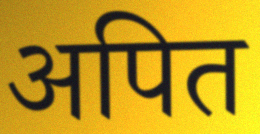
अपित